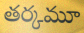
తర్కమూ